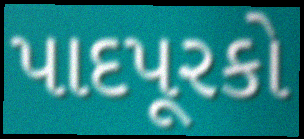
પાદપૂરકો